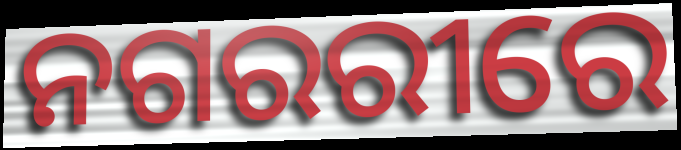
ନଗରରୀରେ